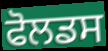
ਫੋਲਡਸ